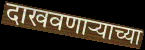
दाखवणाऱ्याच्या